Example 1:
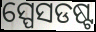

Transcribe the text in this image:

ସ୍ପେସଡଷ୍ଟ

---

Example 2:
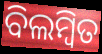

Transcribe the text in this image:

ବିଲମ୍ବିତ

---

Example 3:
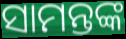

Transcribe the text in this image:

ସାମନ୍ତଙ୍କ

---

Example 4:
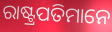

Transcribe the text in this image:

ରାଷ୍ଟ୍ରପତିମାନେ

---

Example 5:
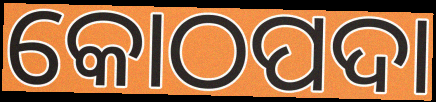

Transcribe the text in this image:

କୋଠପଦା